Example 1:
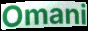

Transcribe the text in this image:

Omani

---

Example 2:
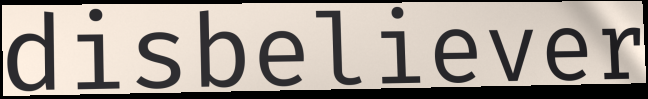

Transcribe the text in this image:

disbeliever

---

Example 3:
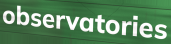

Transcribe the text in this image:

observatories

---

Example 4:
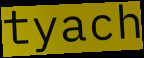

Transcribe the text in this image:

tyach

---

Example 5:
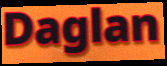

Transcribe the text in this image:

Daglan